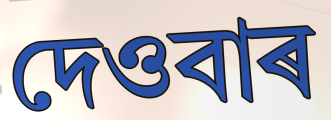
দেওবাৰ